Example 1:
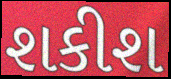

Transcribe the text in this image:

શકીશ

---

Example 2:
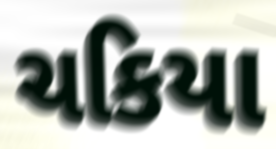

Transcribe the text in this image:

ચકિયા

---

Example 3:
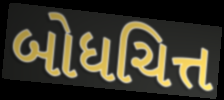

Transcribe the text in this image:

બોધચિત્ત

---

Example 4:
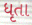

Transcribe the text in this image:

ધૃતા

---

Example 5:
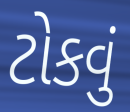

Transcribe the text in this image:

ટોકવું